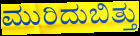
ಮುರಿದುಬಿತ್ತು